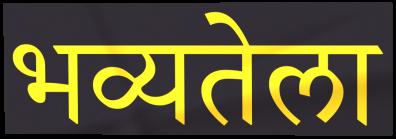
भव्यतेला